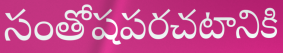
సంతోషపరచటానికి